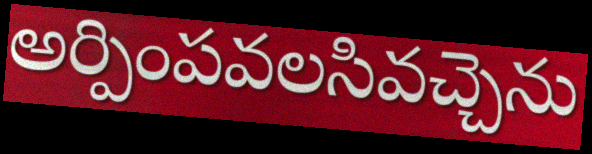
అర్పింపవలసివచ్చెను